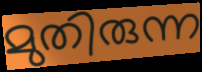
മുതിരുന്ന